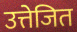
उत्तेजित